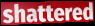
shattered